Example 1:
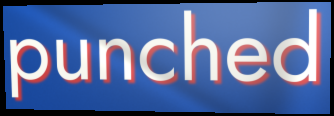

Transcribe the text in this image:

punched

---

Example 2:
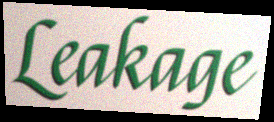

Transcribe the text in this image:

Leakage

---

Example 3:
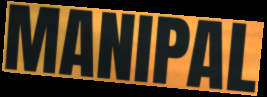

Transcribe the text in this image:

MANIPAL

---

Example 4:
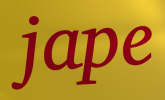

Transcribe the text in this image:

jape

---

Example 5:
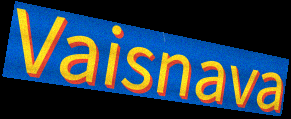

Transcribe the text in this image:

Vaisnava